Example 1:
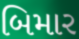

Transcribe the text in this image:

બિમાર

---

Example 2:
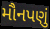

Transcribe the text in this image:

મૌનપણું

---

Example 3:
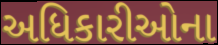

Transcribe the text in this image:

અધિકારીઓના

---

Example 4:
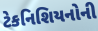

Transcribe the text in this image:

ટેકનિશિયનોની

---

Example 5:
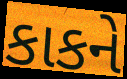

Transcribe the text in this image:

કાકને